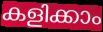
കളിക്കാം